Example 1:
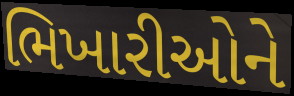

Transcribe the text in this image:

ભિખારીઓને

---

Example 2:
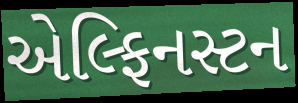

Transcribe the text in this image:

એલ્ફિનસ્ટન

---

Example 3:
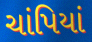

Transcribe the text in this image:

ચાંપિયાં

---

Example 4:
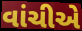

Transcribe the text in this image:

વાંચીએ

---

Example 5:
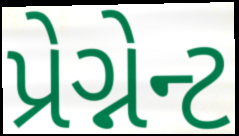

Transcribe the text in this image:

પ્રેગ્નેન્ટ